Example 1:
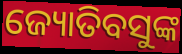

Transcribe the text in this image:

ଜ୍ୟୋତିବସୁଙ୍କ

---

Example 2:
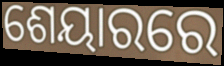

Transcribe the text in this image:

ଶେୟାରରେ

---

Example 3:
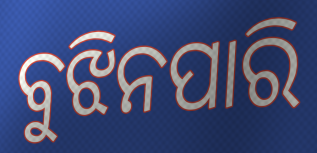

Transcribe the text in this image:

ବୁଝିନପାରି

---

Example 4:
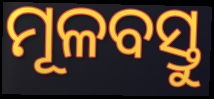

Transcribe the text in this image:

ମୂଳବସ୍ତୁ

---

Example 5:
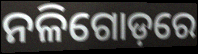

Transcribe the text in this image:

ନଳିଗୋଡ଼ରେ